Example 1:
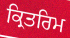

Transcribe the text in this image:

ਕ੍ਰਿਤਰਿਮ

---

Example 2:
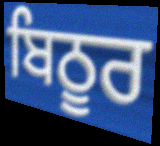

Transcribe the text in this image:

ਬਿਠੂਰ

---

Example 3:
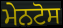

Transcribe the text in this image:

ਮੇਨਟੋਸ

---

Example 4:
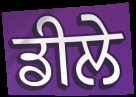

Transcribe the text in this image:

ਡੀਲੇ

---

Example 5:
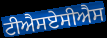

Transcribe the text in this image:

ਟੀਐਸਏਸੀਐਸ